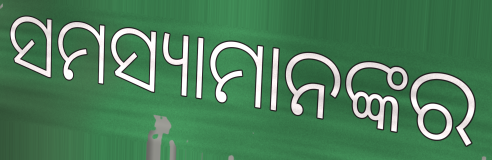
ସମସ୍ୟାମାନଙ୍କର